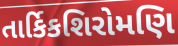
તાર્કિકશિરોમણિ